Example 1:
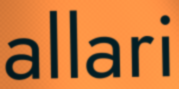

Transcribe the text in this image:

allari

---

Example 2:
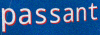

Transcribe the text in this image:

passant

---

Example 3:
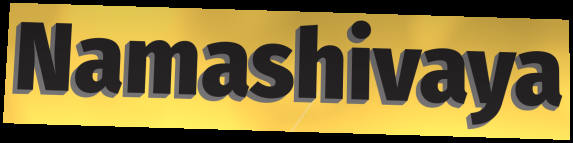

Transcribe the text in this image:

Namashivaya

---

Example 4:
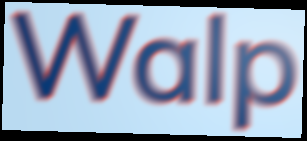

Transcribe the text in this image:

Walp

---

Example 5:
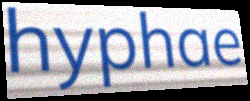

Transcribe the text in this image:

hyphae